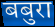
बबुरा